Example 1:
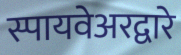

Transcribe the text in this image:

स्पायवेअरद्वारे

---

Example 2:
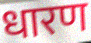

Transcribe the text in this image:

धारण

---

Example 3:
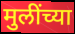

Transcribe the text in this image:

मुलींच्या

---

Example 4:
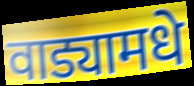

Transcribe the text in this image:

वाड्यामधे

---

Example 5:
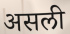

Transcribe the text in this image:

असली